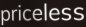
priceless